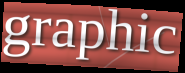
graphic